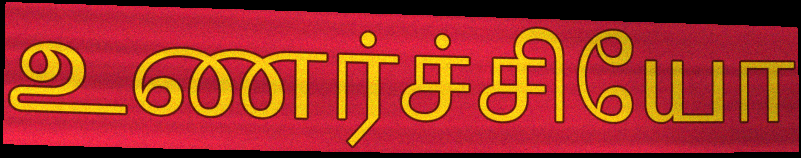
உணர்ச்சியோ